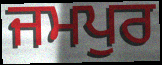
ਜਮਪੁਰ